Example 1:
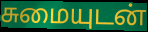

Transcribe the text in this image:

சுமையுடன்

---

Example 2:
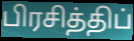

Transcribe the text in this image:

பிரசித்திப்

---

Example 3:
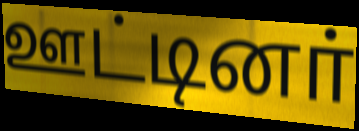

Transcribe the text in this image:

ஊட்டினர்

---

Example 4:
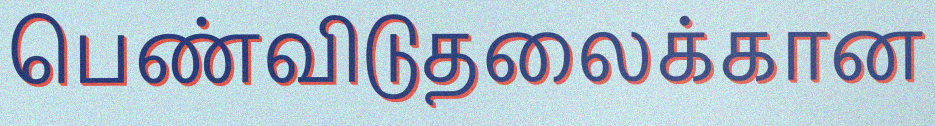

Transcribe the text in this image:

பெண்விடுதலைக்கான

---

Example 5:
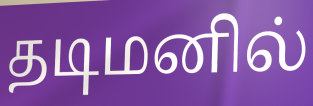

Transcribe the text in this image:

தடிமனில்